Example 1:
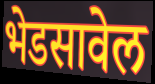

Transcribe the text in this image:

भेडसावेल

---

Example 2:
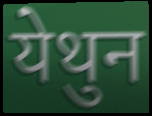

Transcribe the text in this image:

येथुन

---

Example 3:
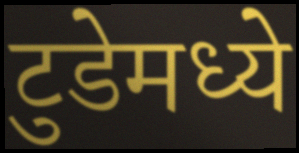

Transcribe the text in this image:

टुडेमध्ये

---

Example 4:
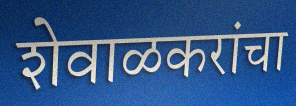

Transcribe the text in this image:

शेवाळकरांचा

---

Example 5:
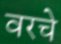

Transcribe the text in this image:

वरचे